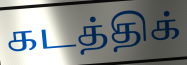
கடத்திக்